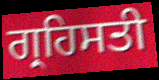
ਗ੍ਰਹਿਸਤੀ